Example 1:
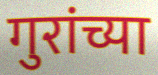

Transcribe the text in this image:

गुरांच्या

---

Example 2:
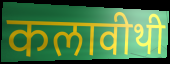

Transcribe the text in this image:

कलावीथी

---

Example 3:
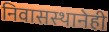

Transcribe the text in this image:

निवासस्थानेही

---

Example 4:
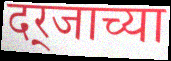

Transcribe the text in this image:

दर्जाच्या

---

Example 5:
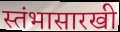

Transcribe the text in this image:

स्तंभासारखी